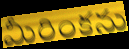
మీరింకను